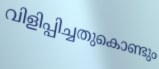
വിളിപ്പിച്ചതുകൊണ്ടും